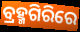
ବ୍ରହ୍ମଗିରିରେ